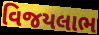
વિજયલાભ